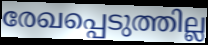
രേഖപ്പെടുത്തില്ല